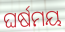
ଘର୍ଷମୟ